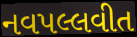
નવપલ્લવીત